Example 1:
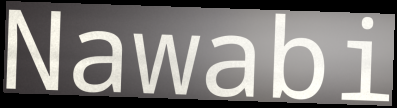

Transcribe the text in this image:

Nawabi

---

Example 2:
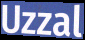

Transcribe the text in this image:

Uzzal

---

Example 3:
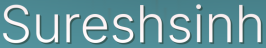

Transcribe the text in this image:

Sureshsinh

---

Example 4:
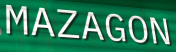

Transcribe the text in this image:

MAZAGON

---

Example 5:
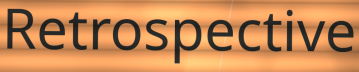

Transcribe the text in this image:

Retrospective